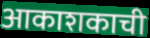
आकाशकाची